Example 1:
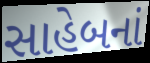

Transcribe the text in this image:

સાહેબનાં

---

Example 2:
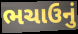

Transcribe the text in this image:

ભચાઉનું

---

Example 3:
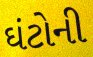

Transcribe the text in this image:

ઘંટોની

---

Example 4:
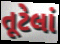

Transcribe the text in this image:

તૂટેલાં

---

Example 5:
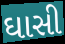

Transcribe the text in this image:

ઘાસી